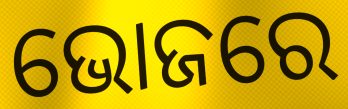
ଭୋଜରେ